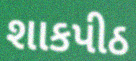
શાકપીઠ